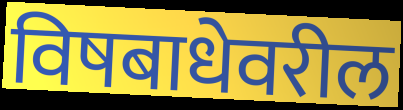
विषबाधेवरील